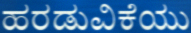
ಹರಡುವಿಕೆಯು